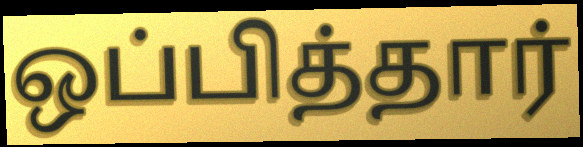
ஒப்பித்தார்